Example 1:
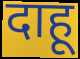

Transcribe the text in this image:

दाहू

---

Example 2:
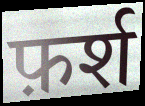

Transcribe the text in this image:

फ़र्श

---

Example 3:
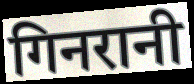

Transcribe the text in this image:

गिनरानी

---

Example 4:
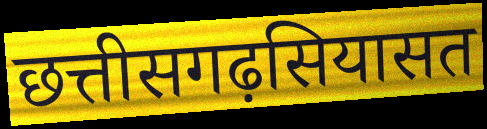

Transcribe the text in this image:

छत्तीसगढ़सियासत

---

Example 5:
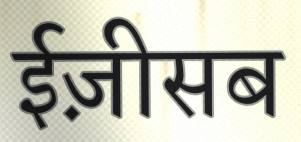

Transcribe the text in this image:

ईज़ीसब